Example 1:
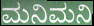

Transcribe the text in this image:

ಮನಿಮನಿ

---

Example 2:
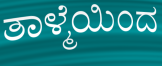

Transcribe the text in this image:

ತಾಳ್ಮೆಯಿಂದ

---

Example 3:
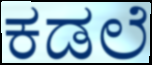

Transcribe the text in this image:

ಕಡಲೆ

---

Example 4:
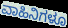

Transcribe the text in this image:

ವಾಹಿನಿಗಳೂ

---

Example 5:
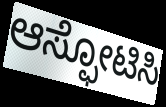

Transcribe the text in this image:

ಆಸ್ಫೋಟಿಸಿ